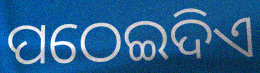
ପଠେଇଦିଏ